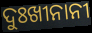
ଦୁଃଖୀନାନୀ